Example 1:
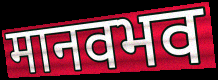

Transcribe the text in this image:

मानवभव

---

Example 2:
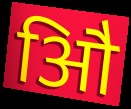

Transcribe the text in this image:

औि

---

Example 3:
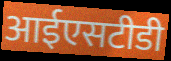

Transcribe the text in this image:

आईएसटीडी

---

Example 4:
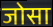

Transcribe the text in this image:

जोसा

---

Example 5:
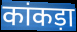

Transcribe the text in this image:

कांकड़ा